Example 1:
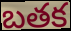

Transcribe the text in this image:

బతక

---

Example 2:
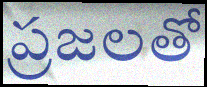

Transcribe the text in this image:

ప్రజలతో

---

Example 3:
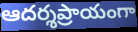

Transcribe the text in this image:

ఆదర్శప్రాయంగా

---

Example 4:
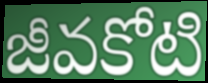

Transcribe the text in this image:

జీవకోటి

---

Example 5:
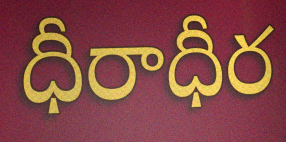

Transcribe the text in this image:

ధీరాధీర